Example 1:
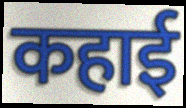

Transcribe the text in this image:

कहाई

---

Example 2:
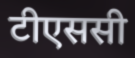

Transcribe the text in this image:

टीएससी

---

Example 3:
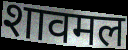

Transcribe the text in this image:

शावमल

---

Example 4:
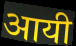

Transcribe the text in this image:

आयी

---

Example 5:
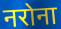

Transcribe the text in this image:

नरोना